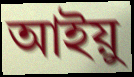
আইয়ু